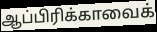
ஆப்பிரிக்காவைக்